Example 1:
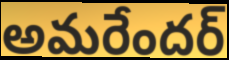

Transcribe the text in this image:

అమరేందర్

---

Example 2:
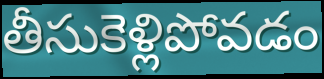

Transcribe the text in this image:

తీసుకెళ్లిపోవడం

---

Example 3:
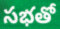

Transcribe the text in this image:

సభతో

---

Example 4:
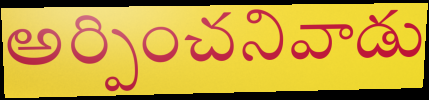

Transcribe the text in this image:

అర్పించనివాడు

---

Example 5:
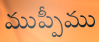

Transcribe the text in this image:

ముప్పీము